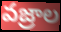
వజ్రాల